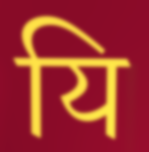
यि